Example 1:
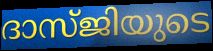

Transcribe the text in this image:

ദാസ്ജിയുടെ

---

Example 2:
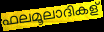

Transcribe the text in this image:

ഫലമൂലാദികള്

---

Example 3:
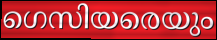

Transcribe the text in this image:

ഗെസിയരെയും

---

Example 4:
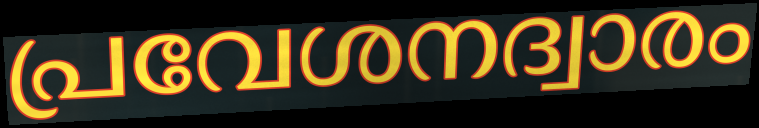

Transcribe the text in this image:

പ്രവേശനദ്വാരം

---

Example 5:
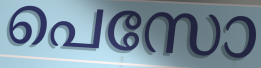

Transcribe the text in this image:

പെസോ